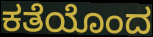
ಕತೆಯೊಂದ